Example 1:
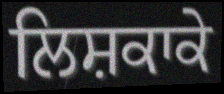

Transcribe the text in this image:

ਲਿਸ਼ਕਾਕੇ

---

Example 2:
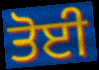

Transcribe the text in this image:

ਤੋਈ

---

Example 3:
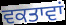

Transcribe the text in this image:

ਵਕਤਾਵਾਂ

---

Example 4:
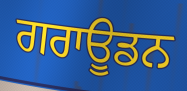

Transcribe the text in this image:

ਗਰਾਊਡਨ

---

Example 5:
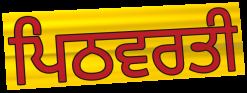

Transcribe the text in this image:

ਪਿਠਵਰਤੀ